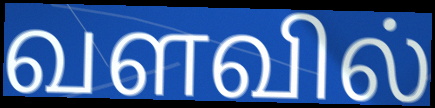
வளவில்